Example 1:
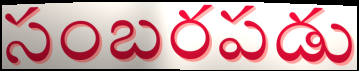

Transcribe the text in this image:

సంబరపడు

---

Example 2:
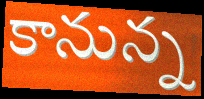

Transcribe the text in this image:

కానున్న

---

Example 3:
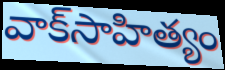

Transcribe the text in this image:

వాక్‌సాహిత్యం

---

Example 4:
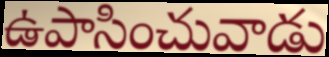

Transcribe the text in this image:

ఉపాసించువాడు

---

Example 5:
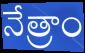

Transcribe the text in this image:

నేత్రాం